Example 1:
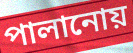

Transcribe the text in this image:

পালানোয়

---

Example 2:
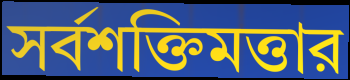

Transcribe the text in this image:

সর্বশক্তিমত্তার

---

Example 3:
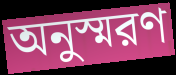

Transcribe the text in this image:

অনুস্মরণ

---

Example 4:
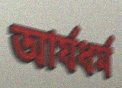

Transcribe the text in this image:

আর্যধর্ম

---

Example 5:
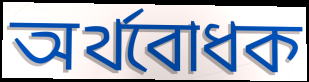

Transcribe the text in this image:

অর্থবোধক